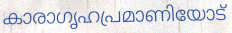
കാരാഗൃഹപ്രമാണിയോട്